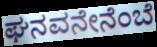
ಘನವನೇನೆಂಬೆ